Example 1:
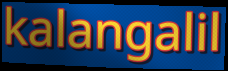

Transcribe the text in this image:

kalangalil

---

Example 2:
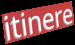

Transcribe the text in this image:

itinere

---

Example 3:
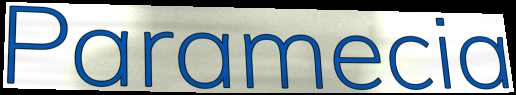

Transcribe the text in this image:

Paramecia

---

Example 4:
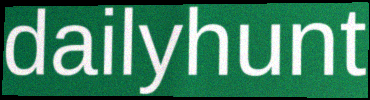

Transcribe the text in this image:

dailyhunt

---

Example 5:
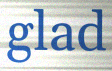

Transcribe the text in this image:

glad